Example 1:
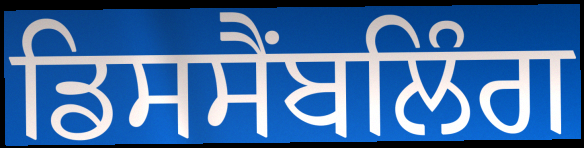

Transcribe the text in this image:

ਡਿਸਸੈਂਬਲਿੰਗ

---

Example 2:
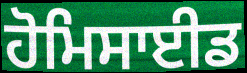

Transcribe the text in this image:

ਹੋਮਿਸਾਈਡ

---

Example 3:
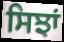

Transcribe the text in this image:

ਸਿਝਾਂ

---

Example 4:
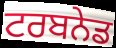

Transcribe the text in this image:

ਟਰਬਨੇਡ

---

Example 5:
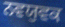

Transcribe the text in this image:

ਨਵਯੁਵਕ